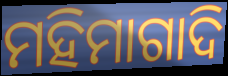
ମହିମାଗାଦି